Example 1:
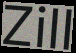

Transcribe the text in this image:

Zill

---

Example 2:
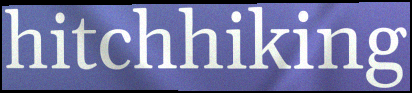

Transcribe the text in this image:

hitchhiking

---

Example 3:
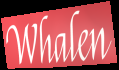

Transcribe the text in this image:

Whalen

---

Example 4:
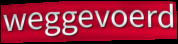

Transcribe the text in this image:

weggevoerd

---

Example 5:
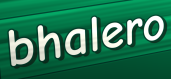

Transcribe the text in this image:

bhalero